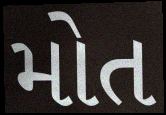
મોત